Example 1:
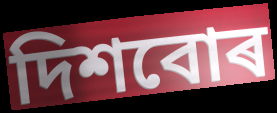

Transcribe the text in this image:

দিশবোৰ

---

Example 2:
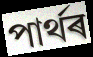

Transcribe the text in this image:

পাৰ্থৰ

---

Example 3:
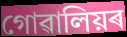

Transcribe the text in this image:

গোৱালিয়ৰ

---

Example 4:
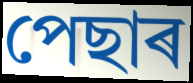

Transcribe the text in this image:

পেছাৰ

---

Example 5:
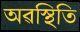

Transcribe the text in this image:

অৱস্থিতি